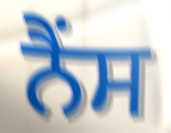
ਨੈਂਸ